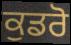
ਕੁਡਰੋ